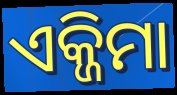
ଏକ୍ଜିମା